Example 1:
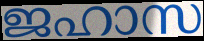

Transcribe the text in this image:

ജഹാസ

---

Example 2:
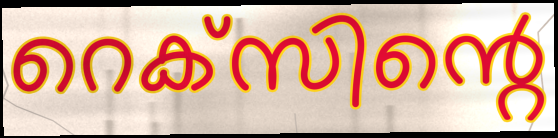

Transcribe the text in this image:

റെക്‌സിന്റെ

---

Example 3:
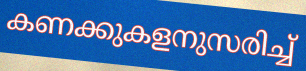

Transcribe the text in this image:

കണക്കുകളനുസരിച്ച്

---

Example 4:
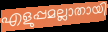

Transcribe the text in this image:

എളുപ്പമല്ലാതായി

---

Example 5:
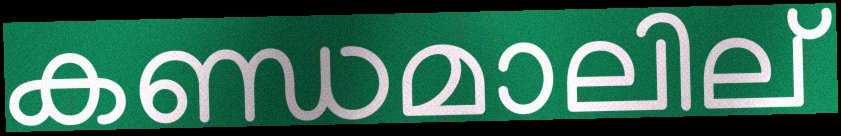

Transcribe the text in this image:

കണ്ഡമാലില്